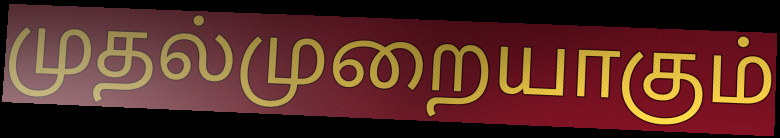
முதல்முறையாகும்